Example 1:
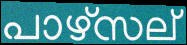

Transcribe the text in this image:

പാഴ്സല്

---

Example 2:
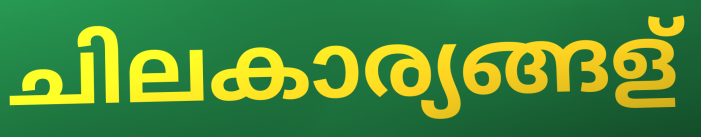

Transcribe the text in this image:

ചിലകാര്യങ്ങള്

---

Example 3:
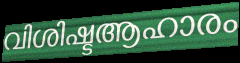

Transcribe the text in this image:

വിശിഷ്ടആഹാരം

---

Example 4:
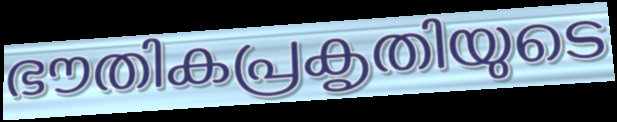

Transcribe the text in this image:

ഭൗതികപ്രകൃതിയുടെ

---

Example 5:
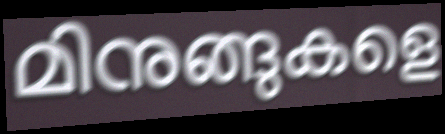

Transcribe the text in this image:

മിനുങ്ങുകളെ